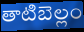
తాటిబెల్లం